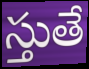
స్తుతే